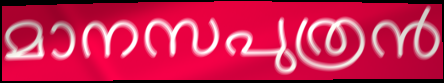
മാനസപുത്രൻ